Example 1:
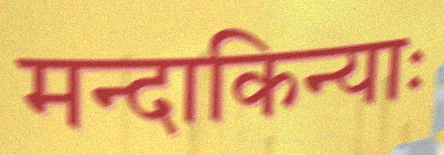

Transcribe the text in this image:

मन्दाकिन्याः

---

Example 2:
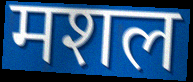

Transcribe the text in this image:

मशल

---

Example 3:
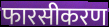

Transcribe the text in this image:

फारसीकरण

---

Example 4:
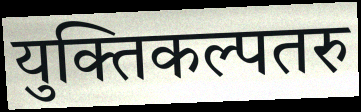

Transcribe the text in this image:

युक्तिकल्पतरु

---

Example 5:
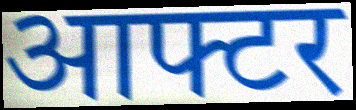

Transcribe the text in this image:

आफ्टर